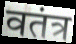
वतंत्र